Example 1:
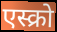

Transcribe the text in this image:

एस्क्रो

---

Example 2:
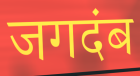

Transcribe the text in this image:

जगदंब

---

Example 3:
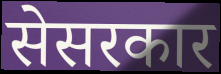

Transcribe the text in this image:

सेसरकार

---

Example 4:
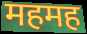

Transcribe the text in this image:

महमह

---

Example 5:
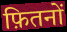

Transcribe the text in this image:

फ़ितनों